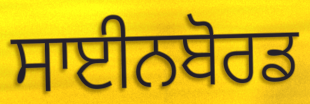
ਸਾਈਨਬੋਰਡ